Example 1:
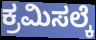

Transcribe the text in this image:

ಕ್ರಮಿಸಲ್ಕೆ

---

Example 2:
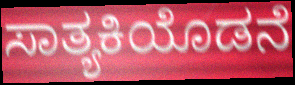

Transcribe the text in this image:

ಸಾತ್ಯಕಿಯೊಡನೆ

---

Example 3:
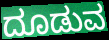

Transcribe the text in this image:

ದೂಡುವ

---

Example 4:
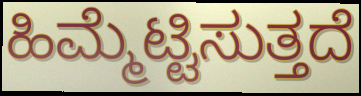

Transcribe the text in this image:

ಹಿಮ್ಮೆಟ್ಟಿಸುತ್ತದೆ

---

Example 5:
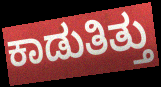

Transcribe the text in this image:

ಕಾಡುತಿತ್ತು